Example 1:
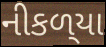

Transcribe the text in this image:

નીકળ્‌યા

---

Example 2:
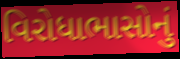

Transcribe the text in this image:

વિરોધાભાસોનું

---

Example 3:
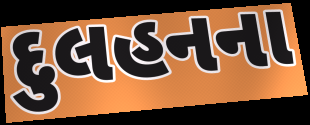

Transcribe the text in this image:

દુલહનના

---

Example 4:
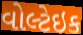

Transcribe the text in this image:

વોલ્ટેઇક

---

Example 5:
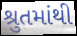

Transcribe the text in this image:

શ્રુતમાંથી